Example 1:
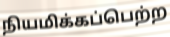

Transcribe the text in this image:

நியமிக்கப்பெற்ற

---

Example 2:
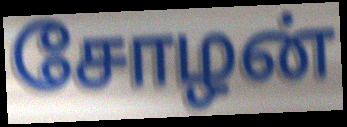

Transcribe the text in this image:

சோழன்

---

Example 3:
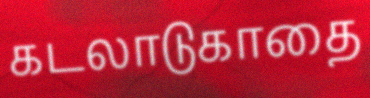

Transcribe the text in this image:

கடலாடுகாதை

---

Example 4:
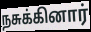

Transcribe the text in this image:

நசுக்கினார்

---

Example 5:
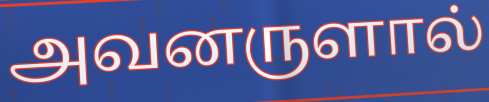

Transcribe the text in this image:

அவனருளால்